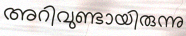
അറിവുണ്ടായിരുന്നു